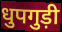
धुपगुड़ी